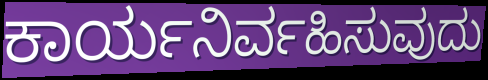
ಕಾರ್ಯನಿರ್ವಹಿಸುವುದು